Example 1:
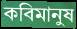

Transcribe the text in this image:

কবিমানুষ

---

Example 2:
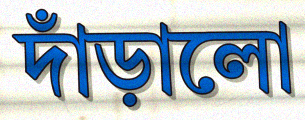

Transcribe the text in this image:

দাঁড়ালো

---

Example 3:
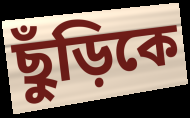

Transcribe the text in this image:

ছুঁড়িকে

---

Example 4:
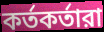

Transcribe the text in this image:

কর্তকর্তারা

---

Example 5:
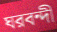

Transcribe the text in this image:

ঘরবন্দী